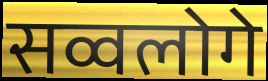
सव्वलोगे